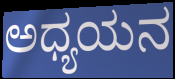
ಅಧ್ಯಯನ